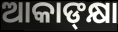
ଆକାଙ୍‌କ୍ଷା